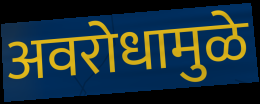
अवरोधामुळे